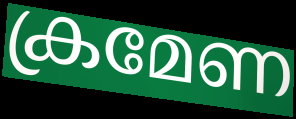
ക്രമേണ